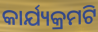
କାର୍ଯ୍ୟକ୍ରମଟି